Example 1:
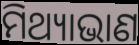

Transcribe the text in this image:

ମିଥ୍ୟାଭାଣ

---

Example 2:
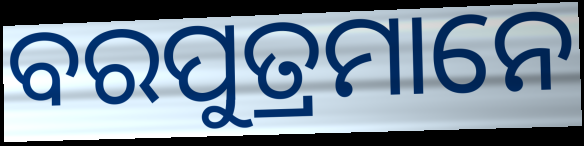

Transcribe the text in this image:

ବରପୁତ୍ରମାନେ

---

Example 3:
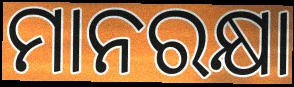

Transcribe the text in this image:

ମାନରକ୍ଷା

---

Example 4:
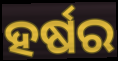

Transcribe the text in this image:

ହର୍ଷର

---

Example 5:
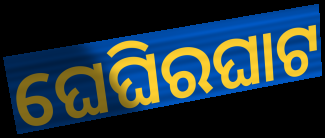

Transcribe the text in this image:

ଘେଘିରଘାଟ